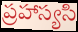
ప్రహాస్యసి